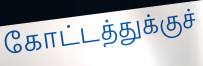
கோட்டத்துக்குச்